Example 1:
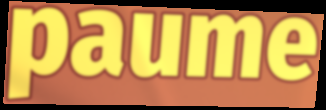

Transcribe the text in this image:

paume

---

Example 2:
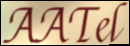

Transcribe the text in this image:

AATel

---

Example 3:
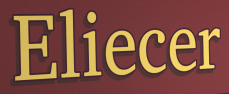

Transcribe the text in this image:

Eliecer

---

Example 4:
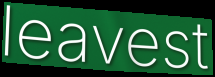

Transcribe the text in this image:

leavest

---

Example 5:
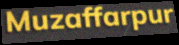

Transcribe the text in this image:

Muzaffarpur